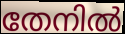
തേനിൽ